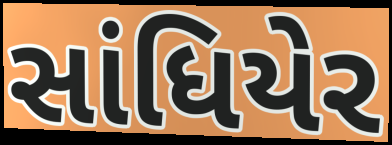
સાંધિયેર